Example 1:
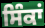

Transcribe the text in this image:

ਸਿੰਕਾਂ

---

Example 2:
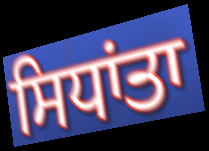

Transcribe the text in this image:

ਸਿਧਾਂਤਾ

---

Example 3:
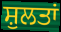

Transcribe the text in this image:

ਸ਼ੁਲਤਾਂ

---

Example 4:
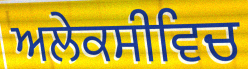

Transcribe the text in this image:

ਅਲੇਕਸੀਵਿਚ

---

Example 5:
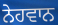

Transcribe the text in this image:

ਨੇਹਵਾਨ